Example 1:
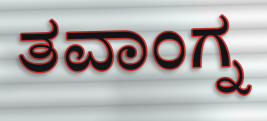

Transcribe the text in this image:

ತವಾಂಗ್ನ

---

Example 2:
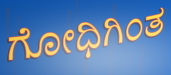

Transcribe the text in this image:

ಗೋಧಿಗಿಂತ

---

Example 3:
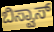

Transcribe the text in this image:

ಬಿಸ್ವಾಸ್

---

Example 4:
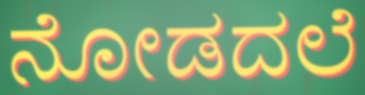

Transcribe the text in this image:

ನೋಡದಲೆ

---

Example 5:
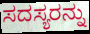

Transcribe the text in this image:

ಸದಸ್ಯರನ್ನು